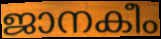
ജാനകീം